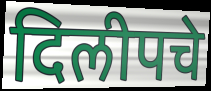
दिलीपचे